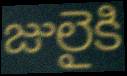
జులైకి